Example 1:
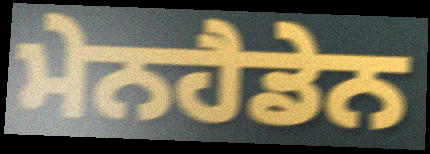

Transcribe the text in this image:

ਮੇਨਹੈਡੇਨ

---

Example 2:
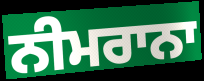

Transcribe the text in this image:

ਨੀਮਰਾਨਾ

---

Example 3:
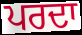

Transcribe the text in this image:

ਪਰਦਾ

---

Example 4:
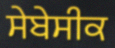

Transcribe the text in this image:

ਸੇਬੇਸੀਕ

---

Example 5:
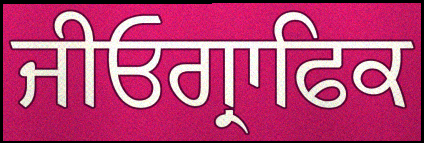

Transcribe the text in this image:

ਜੀਓਗ੍ਰਾਫਿਕ